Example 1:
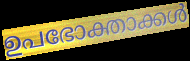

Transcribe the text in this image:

ഉപഭോക്താക്കൾ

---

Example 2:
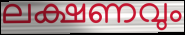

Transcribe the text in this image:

ലക്ഷണവും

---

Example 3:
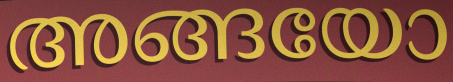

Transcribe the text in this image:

അങ്ങയോ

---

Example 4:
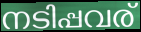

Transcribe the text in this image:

നടിപ്പവര്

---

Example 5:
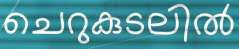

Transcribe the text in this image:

ചെറുകുടലിൽ